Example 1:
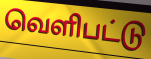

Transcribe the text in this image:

வெளிபட்டு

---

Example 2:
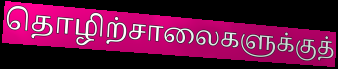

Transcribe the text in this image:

தொழிற்சாலைகளுக்குத்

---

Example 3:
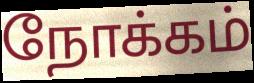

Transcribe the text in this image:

நோக்கம்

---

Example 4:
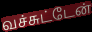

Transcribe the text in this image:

வச்சுட்டேன்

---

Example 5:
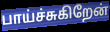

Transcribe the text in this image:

பாய்ச்சுகிறேன்